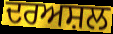
ਦਰਅਸ਼ਲ